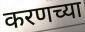
करणच्या